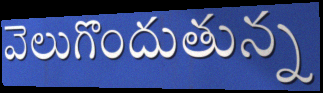
వెలుగొందుతున్న